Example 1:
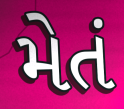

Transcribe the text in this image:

મેતં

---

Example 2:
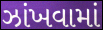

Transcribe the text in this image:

ઝાંખવામાં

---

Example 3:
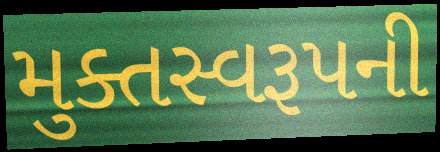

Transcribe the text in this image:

મુક્તસ્વરૂપની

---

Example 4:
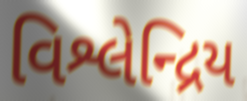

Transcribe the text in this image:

વિશ્લેન્દ્રિય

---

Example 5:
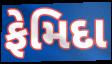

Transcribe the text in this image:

ફેમિદા